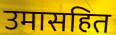
उमासहित